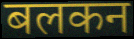
बलकन